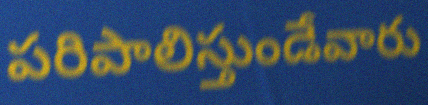
పరిపాలిస్తుండేవారు